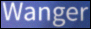
Wanger